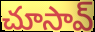
చూసావ్